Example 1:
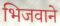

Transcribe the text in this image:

भिजवाने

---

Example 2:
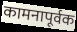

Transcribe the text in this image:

कामनापूर्वक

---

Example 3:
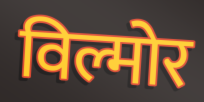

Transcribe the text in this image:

विल्मोर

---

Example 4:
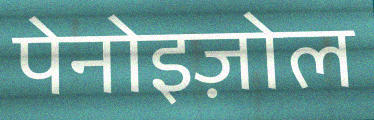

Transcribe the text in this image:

पेनोइज़ोल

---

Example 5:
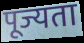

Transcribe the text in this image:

पूज्यता